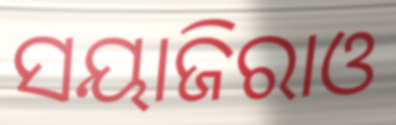
ସୟାଜିରାଓ